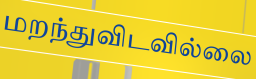
மறந்துவிடவில்லை